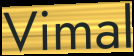
Vimal